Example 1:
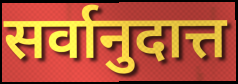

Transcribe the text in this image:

सर्वानुदात्त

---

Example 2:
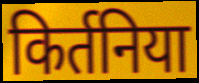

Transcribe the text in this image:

किर्तनिया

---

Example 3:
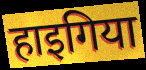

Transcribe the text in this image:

हाइगिया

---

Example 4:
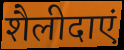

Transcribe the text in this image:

शैलीदाएं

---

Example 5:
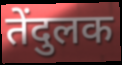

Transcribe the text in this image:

तेंदुलक